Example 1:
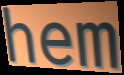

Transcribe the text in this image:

hem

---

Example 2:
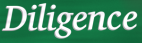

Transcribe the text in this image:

Diligence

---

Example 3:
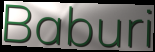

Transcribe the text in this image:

Baburi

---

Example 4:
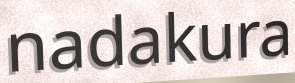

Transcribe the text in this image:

nadakura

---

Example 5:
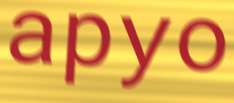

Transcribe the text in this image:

apyo